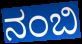
ನಂಬಿ